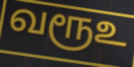
வரூஉ